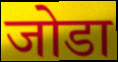
जोडा